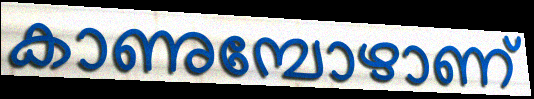
കാണുമ്പോഴാണ്